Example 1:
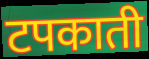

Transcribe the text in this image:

टपकाती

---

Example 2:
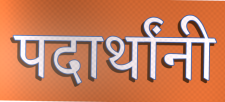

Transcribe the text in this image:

पदार्थांनी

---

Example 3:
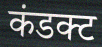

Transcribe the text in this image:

कंडक्ट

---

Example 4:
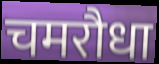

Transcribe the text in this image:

चमरौधा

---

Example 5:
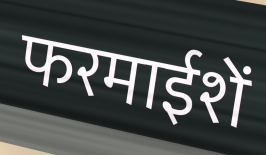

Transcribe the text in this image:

फरमाईशें